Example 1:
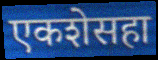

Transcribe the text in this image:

एकशेसहा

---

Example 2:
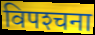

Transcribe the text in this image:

विपश्चना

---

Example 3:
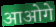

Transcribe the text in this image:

आओगे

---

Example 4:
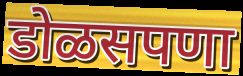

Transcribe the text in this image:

डोळसपणा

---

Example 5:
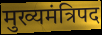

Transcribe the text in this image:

मुख्यमंत्रिपद